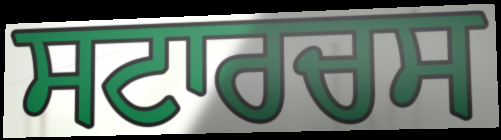
ਸਟਾਰਚਸ